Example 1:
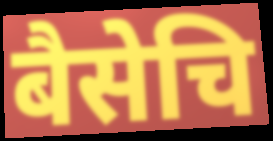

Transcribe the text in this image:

बैसेचि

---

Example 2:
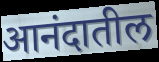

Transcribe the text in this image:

आनंदातील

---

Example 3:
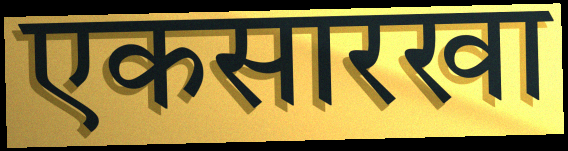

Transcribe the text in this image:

एकसारखा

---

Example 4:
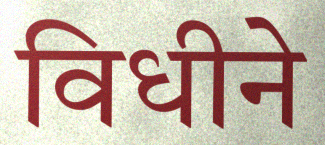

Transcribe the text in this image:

विधीने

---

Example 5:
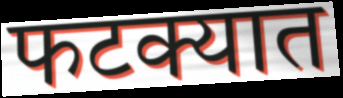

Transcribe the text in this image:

फटक्यात